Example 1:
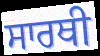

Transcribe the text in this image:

ਸਾਰਥੀ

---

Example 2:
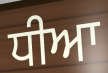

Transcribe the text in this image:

ਧੀਆ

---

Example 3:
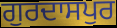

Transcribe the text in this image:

ਗੁਰਦਾਸਪੁਰ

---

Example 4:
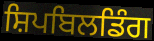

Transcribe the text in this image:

ਸ਼ਿਪਬਿਲਡਿੰਗ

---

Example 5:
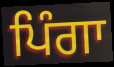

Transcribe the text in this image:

ਪਿੰਗਾ